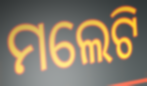
ମଲେଟି